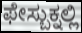
ಫೇಸ್ಬುಕ್ನಲ್ಲಿ